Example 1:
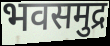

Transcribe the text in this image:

भवसमुद्र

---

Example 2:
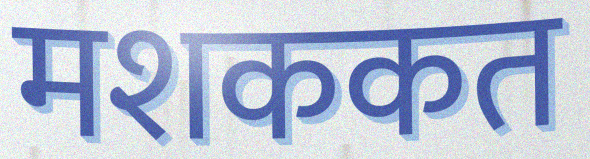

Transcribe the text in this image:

मशककत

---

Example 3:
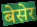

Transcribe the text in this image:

बेसेर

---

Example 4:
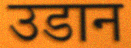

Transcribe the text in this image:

उडान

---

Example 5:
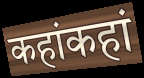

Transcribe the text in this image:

कहांकहां